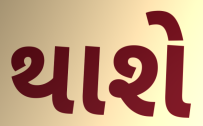
થાશે